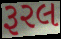
રૂરલ